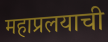
महाप्रलयाची